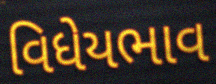
વિધેયભાવ